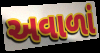
અવાળાં